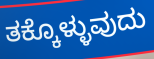
ತಕ್ಕೊಳ್ಳುವುದು